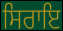
ਸਿਰਾਇ